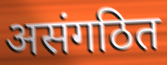
असंगठित